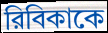
রিবিকাকে